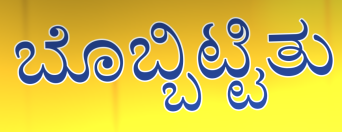
ಬೊಬ್ಬಿಟ್ಟಿತು